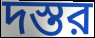
দস্তর